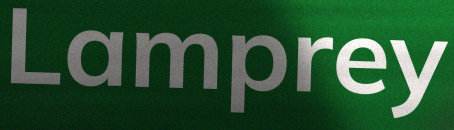
Lamprey